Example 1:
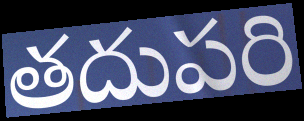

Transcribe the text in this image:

తదుపరి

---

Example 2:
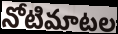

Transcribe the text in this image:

నోటిమాటల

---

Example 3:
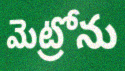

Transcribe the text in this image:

మెట్రోను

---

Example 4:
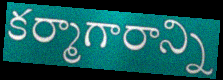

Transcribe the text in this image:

కర్మాగారాన్ని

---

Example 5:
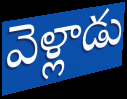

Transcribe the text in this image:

వెళ్లాడు